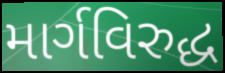
માર્ગવિરુદ્ધ